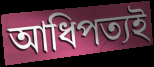
আধিপত্যই